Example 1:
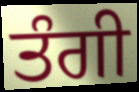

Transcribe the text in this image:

ਤੰਗੀ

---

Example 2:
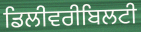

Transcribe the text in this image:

ਡਿਲੀਵਰੀਬਿਲਟੀ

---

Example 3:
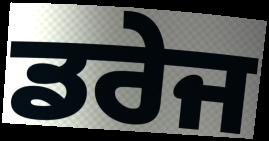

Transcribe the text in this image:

ਡਰੇਜ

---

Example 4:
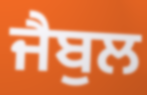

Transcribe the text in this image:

ਜੈਬੁਲ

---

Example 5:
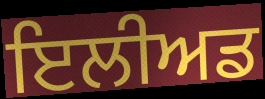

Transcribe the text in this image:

ਇਲੀਅਡ